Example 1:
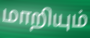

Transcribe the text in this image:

மாறியும்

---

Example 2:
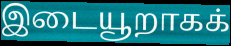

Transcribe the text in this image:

இடையூறாகக்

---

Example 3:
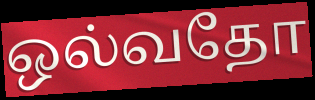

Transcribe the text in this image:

ஒல்வதோ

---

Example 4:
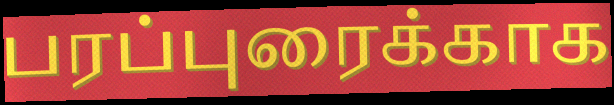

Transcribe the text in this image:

பரப்புரைக்காக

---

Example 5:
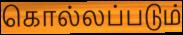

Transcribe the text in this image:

கொல்லப்படும்